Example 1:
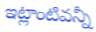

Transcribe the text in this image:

ఇట్లాంటివన్నీ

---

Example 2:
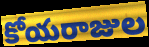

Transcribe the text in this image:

కోయరాజుల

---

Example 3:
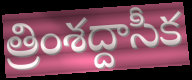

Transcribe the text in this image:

త్రింశద్దాసీక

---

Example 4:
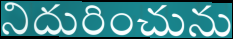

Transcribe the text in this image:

నిదురించును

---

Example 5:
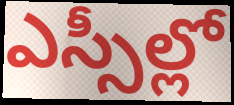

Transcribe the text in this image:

ఎస్సీల్లో